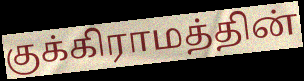
குக்கிராமத்தின்